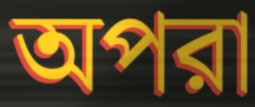
অপরা